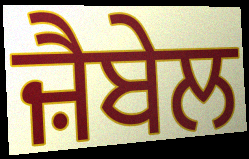
ਜ਼ੈਬੇਲ